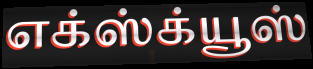
எக்ஸ்க்யூஸ்